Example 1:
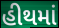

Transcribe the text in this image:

હીથમાં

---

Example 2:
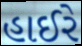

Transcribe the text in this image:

હાઈરે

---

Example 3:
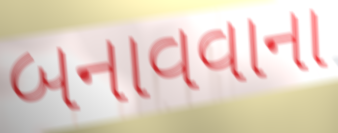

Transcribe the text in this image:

બનાવવાના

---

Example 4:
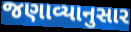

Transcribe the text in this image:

જણાવ્યાનુસાર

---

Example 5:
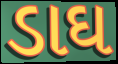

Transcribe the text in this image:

ડાઘ